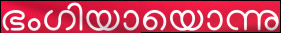
ഭംഗിയായൊന്നു